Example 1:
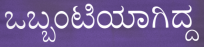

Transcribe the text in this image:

ಒಬ್ಬಂಟಿಯಾಗಿದ್ದ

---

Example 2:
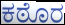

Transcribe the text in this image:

ಕಠೊರ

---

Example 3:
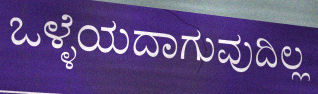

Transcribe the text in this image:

ಒಳ್ಳೆಯದಾಗುವುದಿಲ್ಲ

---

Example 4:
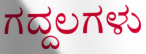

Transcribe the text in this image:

ಗದ್ದಲಗಳು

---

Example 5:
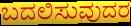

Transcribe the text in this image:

ಬದಲಿಸುವುದರ